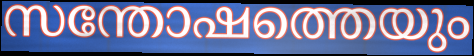
സന്തോഷത്തെയും